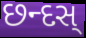
છન્દસ્